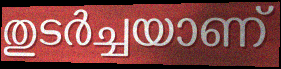
തുടർച്ചയാണ്